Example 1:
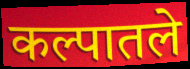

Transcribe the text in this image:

कल्पातले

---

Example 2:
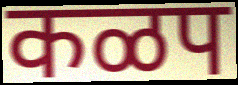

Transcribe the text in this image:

कळप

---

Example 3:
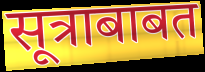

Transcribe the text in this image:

सूत्राबाबत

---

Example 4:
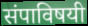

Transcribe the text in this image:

संपाविषयी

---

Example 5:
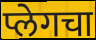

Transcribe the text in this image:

प्लेगचा